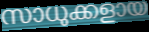
സാധുക്കളായ